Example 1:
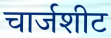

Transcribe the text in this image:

चार्जशीट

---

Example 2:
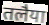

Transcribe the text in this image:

तलैया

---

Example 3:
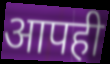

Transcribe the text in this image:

आपही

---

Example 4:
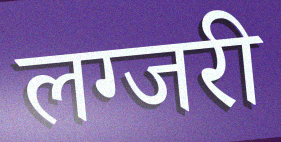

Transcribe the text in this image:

लग्जरी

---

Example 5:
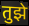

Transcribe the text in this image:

तुझे